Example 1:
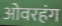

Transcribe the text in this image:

ओवरहंग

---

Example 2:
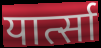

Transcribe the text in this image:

यार्त्सा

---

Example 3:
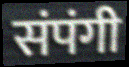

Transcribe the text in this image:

संपंगी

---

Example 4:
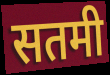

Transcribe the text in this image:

सतमी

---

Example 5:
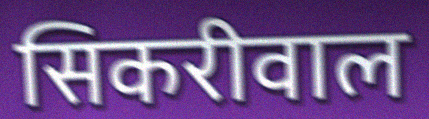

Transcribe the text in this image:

सिकरीवाल